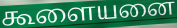
கூளையனை